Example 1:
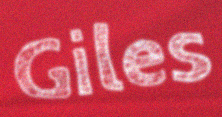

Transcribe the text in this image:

Giles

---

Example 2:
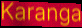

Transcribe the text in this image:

Karanga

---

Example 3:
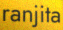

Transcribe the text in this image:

ranjita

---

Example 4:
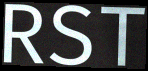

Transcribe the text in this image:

RST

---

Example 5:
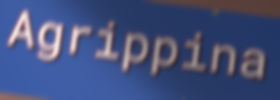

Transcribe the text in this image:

Agrippina